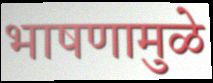
भाषणामुळे